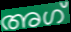
അഗ്